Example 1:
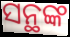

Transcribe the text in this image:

ସନ୍ଥଙ୍କ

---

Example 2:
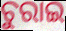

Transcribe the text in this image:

ଚୁରାଇ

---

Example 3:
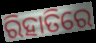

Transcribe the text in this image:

ରିହାତିରେ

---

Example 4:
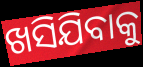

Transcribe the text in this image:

ଖସିଯିବାକୁ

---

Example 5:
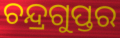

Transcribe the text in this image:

ଚନ୍ଦ୍ରଗୁପ୍ତର